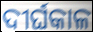
ଦୀର୍ଘକାଳ